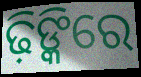
ଢ଼ିଙ୍କିରେ